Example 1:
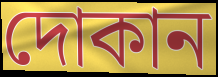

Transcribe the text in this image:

দোকান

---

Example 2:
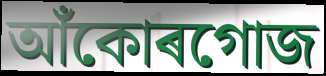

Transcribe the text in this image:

আঁকোৰগোজ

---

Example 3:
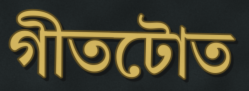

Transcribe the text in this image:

গীতটোত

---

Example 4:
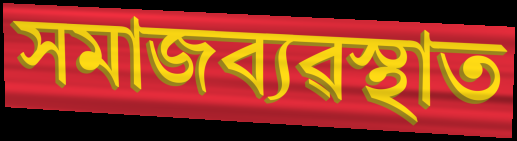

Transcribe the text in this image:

সমাজব্যৱস্থাত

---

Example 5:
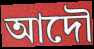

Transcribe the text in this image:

আদৌ